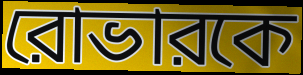
রোভারকে